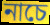
নাচে